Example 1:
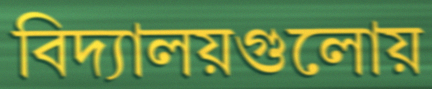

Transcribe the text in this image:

বিদ্যালয়গুলোয়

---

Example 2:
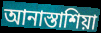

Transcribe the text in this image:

আনাস্তাশিয়া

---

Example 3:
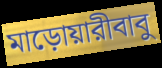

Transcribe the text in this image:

মাড়োয়ারীবাবু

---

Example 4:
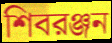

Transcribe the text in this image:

শিবরঞ্জন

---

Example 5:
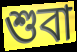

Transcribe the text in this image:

শুবা